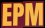
EPM